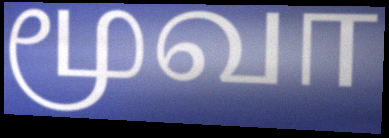
மூவா